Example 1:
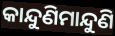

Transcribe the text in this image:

କାନ୍ଦୁଣିମାନ୍ଦୁଣି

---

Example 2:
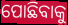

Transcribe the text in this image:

ପୋଛିବାକୁ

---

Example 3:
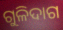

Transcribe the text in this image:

ଗୁଳିଦାଗ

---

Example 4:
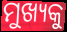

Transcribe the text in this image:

ମୁଖ୍ୟକୁ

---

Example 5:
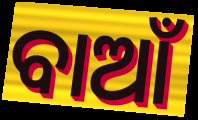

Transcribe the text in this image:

ବାଆଁ